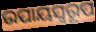
ଉପାୟସ୍ୱରୂପ